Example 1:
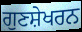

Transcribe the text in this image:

ਗੁਣਸ਼ੇਖਰਨ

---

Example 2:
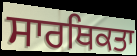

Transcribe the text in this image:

ਸਾਰਥਿਕਤਾ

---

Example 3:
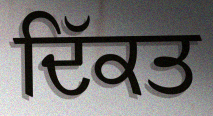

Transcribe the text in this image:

ਦਿੱਕਤ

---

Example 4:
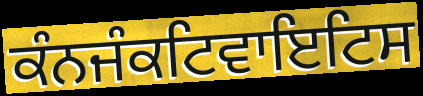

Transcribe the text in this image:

ਕੰਨਜੰਕਟਿਵਾਇਟਿਸ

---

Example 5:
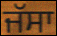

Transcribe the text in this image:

ਜੱਸਾ